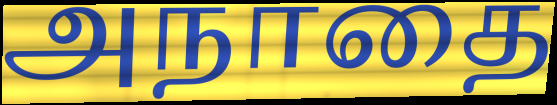
அநாதை